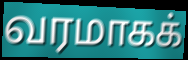
வரமாகக்